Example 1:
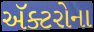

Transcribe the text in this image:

ઍક્ટરોના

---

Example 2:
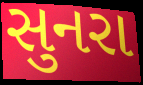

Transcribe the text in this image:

સુનરા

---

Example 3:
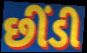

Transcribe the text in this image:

છીંડી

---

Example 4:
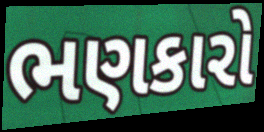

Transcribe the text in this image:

ભણકારો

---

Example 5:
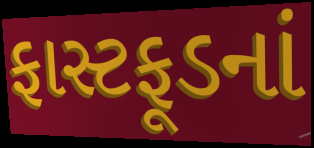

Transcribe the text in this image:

ફાસ્ટફૂડનાં